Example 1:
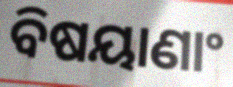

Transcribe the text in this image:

ବିଷୟାଣାଂ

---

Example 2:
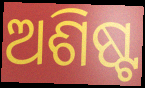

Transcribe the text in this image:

ଅଶିଷ୍ଟ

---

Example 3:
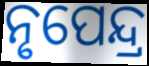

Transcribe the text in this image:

ନୃପେନ୍ଦ୍ର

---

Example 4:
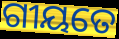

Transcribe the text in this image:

ଗୀୟତେ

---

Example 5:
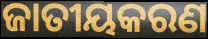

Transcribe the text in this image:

ଜାତୀୟକରଣ